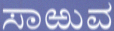
ಸಾಱುವ